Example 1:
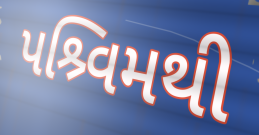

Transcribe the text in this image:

પશ્ર્વિમથી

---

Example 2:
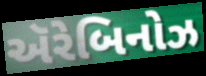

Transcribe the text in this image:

ઍરેબિનોઝ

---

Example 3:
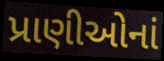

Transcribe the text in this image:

પ્રાણીઓનાં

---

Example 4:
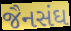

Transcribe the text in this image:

જૈનસંઘ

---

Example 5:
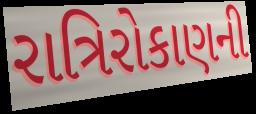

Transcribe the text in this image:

રાત્રિરોકાણની